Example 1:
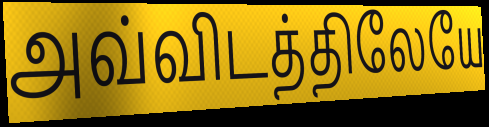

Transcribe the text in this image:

அவ்விடத்திலேயே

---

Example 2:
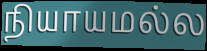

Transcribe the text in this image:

நியாயமல்ல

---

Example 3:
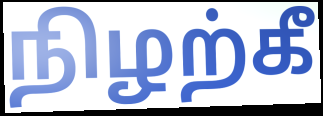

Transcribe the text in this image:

நிழற்கீ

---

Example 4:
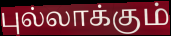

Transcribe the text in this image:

புல்லாக்கும்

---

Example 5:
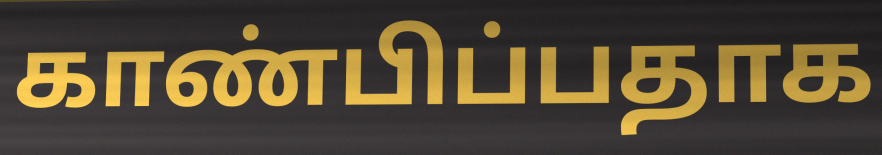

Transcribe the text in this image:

காண்பிப்பதாக